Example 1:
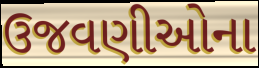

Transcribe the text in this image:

ઉજવણીઓના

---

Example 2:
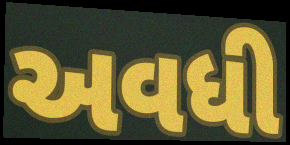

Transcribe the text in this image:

અવધી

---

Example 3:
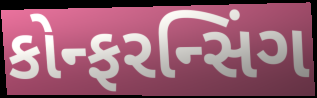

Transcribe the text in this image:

કોન્ફરન્સિંગ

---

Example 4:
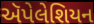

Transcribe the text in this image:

ઍપેલેશિયન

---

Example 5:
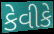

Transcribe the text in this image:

કેવીકે